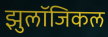
झुलॉजिकल